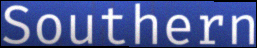
Southern